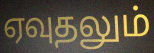
ஏவுதலும்